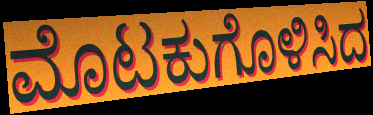
ಮೊಟಕುಗೊಳಿಸಿದ